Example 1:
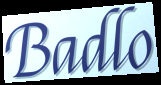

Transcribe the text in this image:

Badlo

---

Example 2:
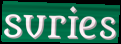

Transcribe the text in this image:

suries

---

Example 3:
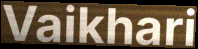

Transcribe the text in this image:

Vaikhari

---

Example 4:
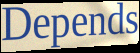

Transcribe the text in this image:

Depends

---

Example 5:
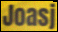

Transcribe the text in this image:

Joasj